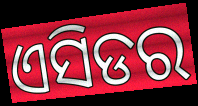
ଏସିଡର